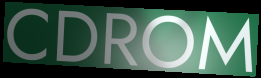
CDROM